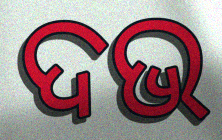
ଦଭ